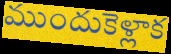
ముందుకెళ్లాక